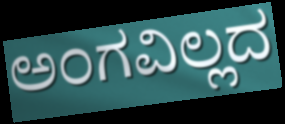
ಅಂಗವಿಲ್ಲದ